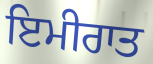
ਇਮੀਰਾਤ